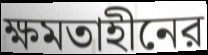
ক্ষমতাহীনের